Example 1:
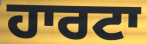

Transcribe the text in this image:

ਹਾਰਟਾ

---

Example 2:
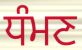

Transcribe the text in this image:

ਧੰਮਣ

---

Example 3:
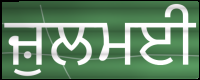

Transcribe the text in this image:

ਜ਼ੁਲਮਈ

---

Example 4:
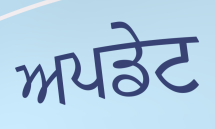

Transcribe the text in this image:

ਅਪਡੇਟ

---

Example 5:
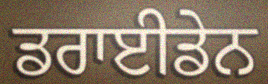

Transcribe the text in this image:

ਡਰਾਈਡੇਨ